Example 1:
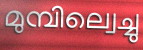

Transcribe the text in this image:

മുമ്പില്വെച്ചു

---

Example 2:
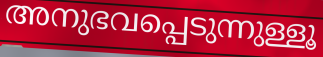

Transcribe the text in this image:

അനുഭവപ്പെടുന്നുള്ളൂ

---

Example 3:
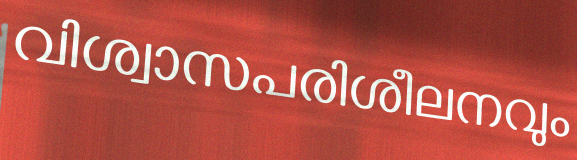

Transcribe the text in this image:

വിശ്വാസപരിശീലനവും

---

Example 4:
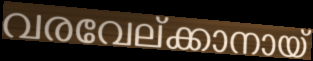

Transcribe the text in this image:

വരവേല്ക്കാനായ്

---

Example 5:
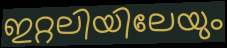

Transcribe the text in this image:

ഇറ്റലിയിലേയും